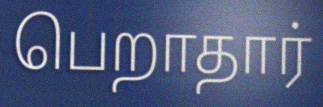
பெறாதார்